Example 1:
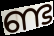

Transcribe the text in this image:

ണ്ട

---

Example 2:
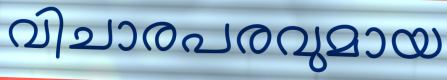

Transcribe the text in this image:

വിചാരപരവുമായ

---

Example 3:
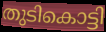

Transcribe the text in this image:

തുടികൊട്ടി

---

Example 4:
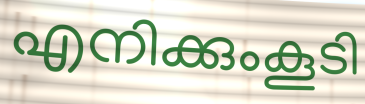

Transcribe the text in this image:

എനിക്കുംകൂടി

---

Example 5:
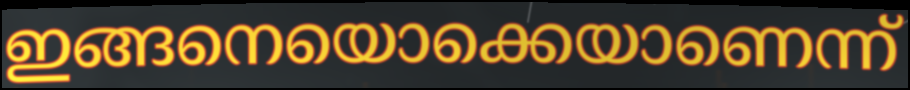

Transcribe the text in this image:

ഇങ്ങനെയൊക്കെയാണെന്ന്